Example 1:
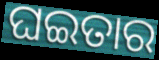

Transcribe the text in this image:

ଘଇତାର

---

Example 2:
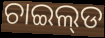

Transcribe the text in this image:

ଚାଇଲ୍‌ଡ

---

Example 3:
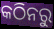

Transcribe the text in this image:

କଠିନରୁ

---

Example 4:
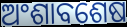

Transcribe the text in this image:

ଅଂଶାବଶେଷ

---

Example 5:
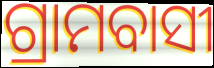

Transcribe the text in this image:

ଗ୍ରାମବାସୀ